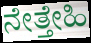
ನೇತ್ತೇಹಿ